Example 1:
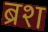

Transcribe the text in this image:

ब्रश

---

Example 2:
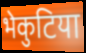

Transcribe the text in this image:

भेकुटिया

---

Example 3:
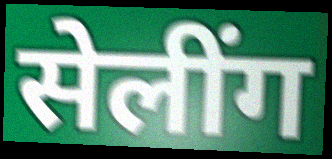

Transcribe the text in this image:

सेलींग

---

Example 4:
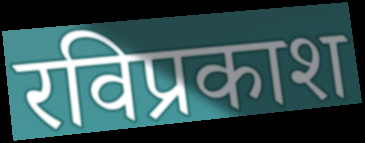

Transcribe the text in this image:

रविप्रकाश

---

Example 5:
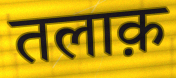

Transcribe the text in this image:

तलाक़